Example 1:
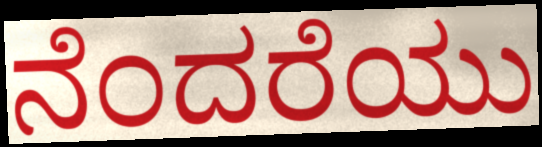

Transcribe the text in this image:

ನೆಂದರೆಯು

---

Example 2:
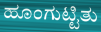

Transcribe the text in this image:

ಹೂಂಗುಟ್ಟಿತು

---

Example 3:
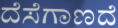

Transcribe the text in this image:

ದೆಸೆಗಾಣದೆ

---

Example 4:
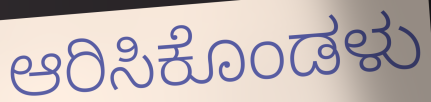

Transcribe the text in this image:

ಆರಿಸಿಕೊಂಡಳು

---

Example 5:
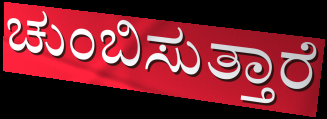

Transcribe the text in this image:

ಚುಂಬಿಸುತ್ತಾರೆ